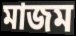
মাজম